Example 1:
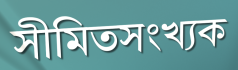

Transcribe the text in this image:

সীমিতসংখ্যক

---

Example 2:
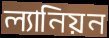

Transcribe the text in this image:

ল্যানিয়ন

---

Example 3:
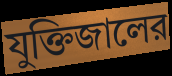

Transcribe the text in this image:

যুক্তিজালের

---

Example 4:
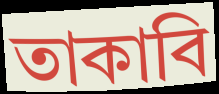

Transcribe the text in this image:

তাকাবি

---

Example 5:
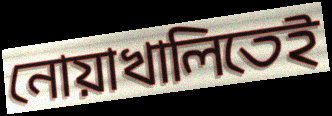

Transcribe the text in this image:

নোয়াখালিতেই